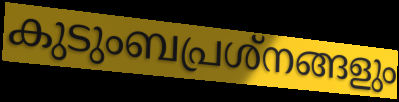
കുടുംബപ്രശ്നങ്ങളും